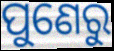
ପୁଣେରୁ